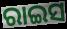
ରାଇସ